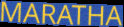
MARATHA